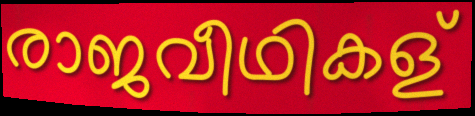
രാജവീഥികള്